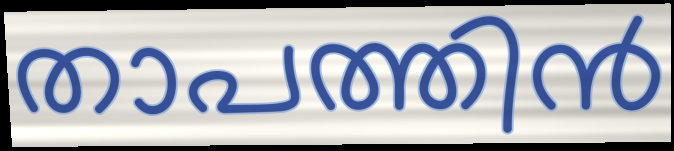
താപത്തിൻ